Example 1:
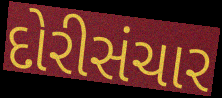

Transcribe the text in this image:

દોરીસંચાર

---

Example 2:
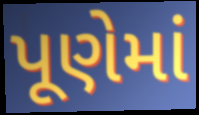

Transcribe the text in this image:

પૂણેમાં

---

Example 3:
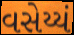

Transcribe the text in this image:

વસેય્યં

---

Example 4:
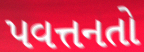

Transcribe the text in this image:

પવત્તનતો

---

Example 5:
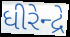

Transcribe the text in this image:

ધીરેન્દ્રે